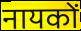
नायकों